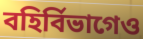
বহির্বিভাগেও